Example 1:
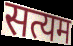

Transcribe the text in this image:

सत्यम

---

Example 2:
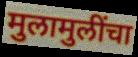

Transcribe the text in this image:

मुलामुलींचा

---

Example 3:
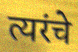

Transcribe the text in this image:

त्यरंचे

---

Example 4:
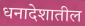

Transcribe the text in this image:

धनादेशातील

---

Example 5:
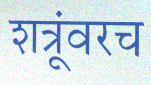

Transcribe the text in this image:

शत्रूंवरच